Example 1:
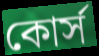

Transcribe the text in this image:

কোর্স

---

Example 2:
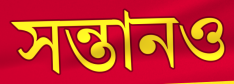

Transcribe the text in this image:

সন্তানও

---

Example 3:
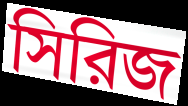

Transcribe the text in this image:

সিরিজ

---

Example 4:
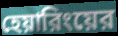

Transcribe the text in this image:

হেয়ারিংয়ের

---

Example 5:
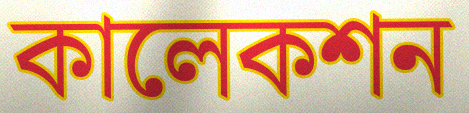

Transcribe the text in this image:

কালেকশন